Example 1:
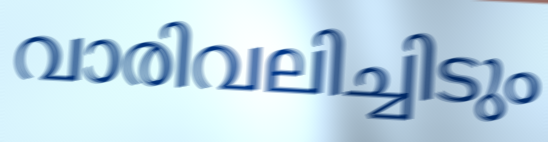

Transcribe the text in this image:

വാരിവലിച്ചിടും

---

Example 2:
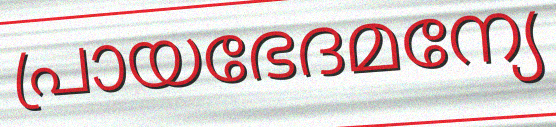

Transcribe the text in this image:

പ്രായഭേദമന്യേ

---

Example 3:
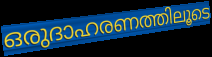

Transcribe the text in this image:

ഒരുദാഹരണത്തിലൂടെ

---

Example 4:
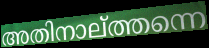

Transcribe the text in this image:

അതിനാല്ത്തന്നെ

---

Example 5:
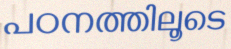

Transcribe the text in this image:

പഠനത്തിലൂടെ